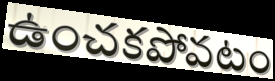
ఉంచకపోవటం